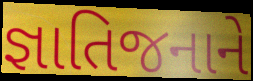
જ્ઞાતિજનાને